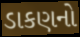
ડાકણનો